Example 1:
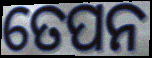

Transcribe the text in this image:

ତେପନ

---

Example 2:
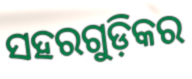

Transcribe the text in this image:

ସହରଗୁଡ଼ିକର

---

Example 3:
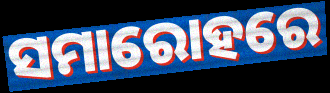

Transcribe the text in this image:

ସମାରୋହରେ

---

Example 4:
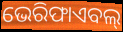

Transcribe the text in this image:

ଭେରିଫାଏବଲ୍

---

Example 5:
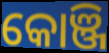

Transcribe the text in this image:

କୋଞ୍ଜି